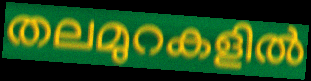
തലമുറകളിൽ